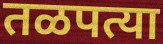
तळपत्या